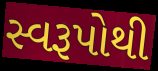
સ્વરૂપોથી